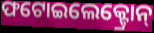
ଫଟୋଇଲେକ୍ଟ୍ରୋନ୍